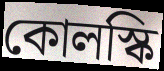
কোলস্কি